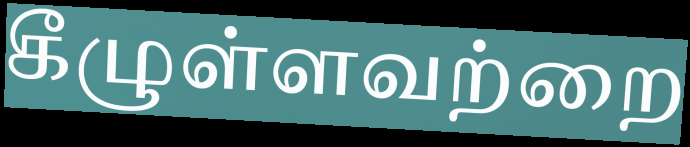
கீழுள்ளவற்றை